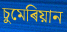
চুমেৰিয়ান